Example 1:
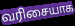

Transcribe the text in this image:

வரிசையாக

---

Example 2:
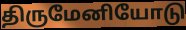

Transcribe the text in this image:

திருமேனியோடு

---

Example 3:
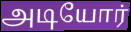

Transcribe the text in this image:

அடியோர்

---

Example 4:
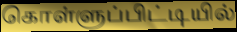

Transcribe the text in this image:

கொள்ளுப்பிட்டியில்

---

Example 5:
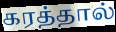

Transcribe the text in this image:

கரத்தால்